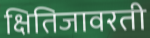
क्षितिजावरती